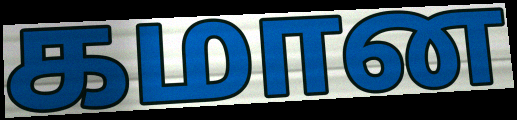
கமான